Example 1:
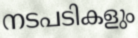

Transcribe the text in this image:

നടപടികളും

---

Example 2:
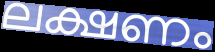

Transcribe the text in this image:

ലക്ഷണം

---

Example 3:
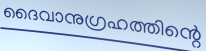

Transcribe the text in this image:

ദൈവാനുഗ്രഹത്തിന്റെ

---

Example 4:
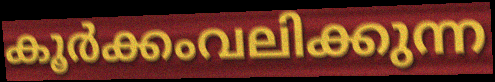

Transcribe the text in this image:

കൂർക്കംവലിക്കുന്ന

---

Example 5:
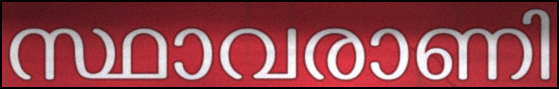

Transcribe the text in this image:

സ്ഥാവരാണി